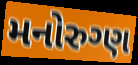
મનોરુગ્ણ